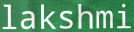
lakshmi